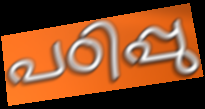
പഠിപ്പു